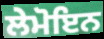
ਲੇਮੋਇਨ